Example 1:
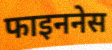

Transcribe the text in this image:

फाइननेस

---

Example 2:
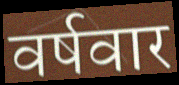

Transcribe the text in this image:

वर्षवार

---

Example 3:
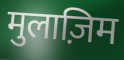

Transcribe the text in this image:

मुलाज़िम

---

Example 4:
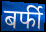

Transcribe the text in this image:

बर्फी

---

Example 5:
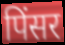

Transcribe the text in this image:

पिंसर